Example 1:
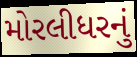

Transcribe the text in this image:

મોરલીધરનું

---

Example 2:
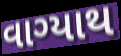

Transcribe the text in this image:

વાગ્યાથ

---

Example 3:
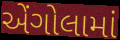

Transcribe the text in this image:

એંગોલામાં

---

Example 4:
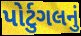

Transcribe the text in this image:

પોર્ટુગલનું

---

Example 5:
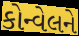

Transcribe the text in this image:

કોન્વેલને